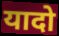
यादो